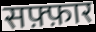
सफ़्फ़ार